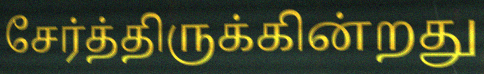
சேர்த்திருக்கின்றது